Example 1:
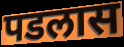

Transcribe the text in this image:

पडलास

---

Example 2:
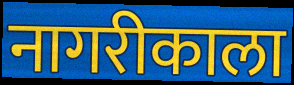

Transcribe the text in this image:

नागरीकाला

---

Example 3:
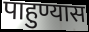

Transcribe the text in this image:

पाहुण्यास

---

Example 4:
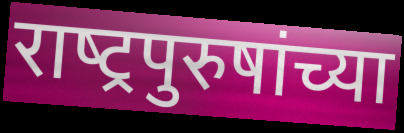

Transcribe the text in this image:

राष्ट्रपुरुषांच्या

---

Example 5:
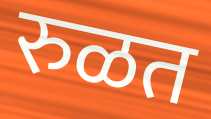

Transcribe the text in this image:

रुळत